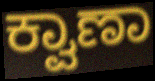
ಕ್ವಾಣಾ